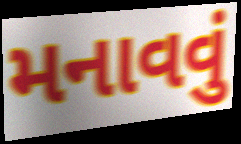
મનાવવું